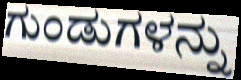
ಗುಂಡುಗಳನ್ನು